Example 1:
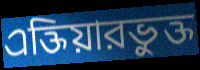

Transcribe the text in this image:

এক্তিয়ারভুক্ত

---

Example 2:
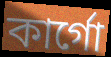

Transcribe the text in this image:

কার্গো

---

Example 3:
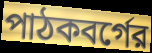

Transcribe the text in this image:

পাঠকবর্গের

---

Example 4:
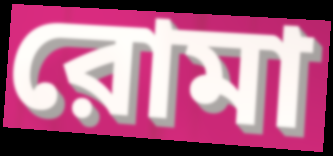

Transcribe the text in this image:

রোমা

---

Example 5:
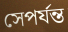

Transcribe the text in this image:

সেপর্যন্ত